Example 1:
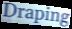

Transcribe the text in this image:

Draping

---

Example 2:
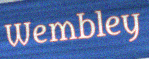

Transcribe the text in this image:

Wembley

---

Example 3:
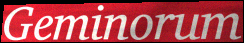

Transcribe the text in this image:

Geminorum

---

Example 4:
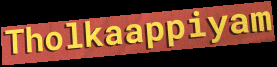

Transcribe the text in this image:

Tholkaappiyam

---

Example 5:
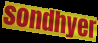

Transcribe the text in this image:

sondhyer